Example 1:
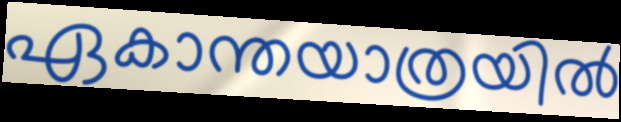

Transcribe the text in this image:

ഏകാന്തയാത്രയിൽ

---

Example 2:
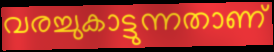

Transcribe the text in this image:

വരച്ചുകാട്ടുന്നതാണ്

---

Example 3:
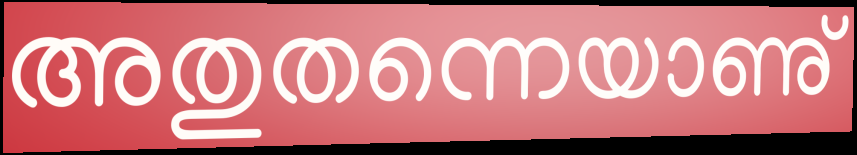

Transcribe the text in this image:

അതുതന്നെയാണു്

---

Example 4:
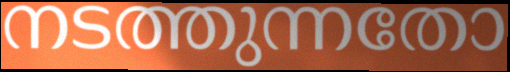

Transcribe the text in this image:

നടത്തുന്നതോ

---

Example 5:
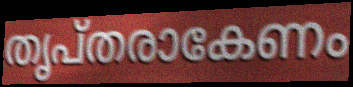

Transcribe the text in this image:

തൃപ്തരാകേണം